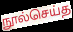
நூல்செய்த